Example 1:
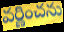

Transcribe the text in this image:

వర్ణించను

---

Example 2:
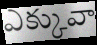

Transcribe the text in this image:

ఎక్కువా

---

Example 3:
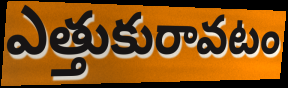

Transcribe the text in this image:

ఎత్తుకురావటం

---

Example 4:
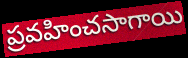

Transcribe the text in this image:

ప్రవహించసాగాయి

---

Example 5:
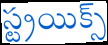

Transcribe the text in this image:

స్ట్రయిక్స్